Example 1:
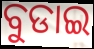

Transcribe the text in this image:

ବୁଡାଇ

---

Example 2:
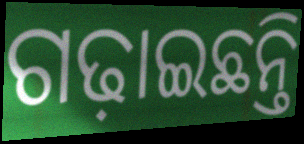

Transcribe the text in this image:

ଗଢ଼ାଇଛନ୍ତି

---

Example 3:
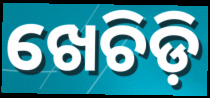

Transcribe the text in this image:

ଖେଚିଡ଼ି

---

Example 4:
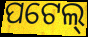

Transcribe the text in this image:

ପଟେଲ୍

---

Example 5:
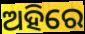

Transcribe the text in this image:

ଅହିରେ